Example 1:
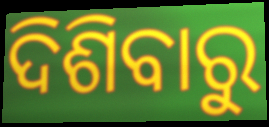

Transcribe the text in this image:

ଦିଶିବାରୁ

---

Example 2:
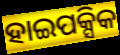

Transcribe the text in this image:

ହାଇପକ୍ସିକ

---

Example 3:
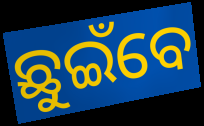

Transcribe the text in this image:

ଛୁଇଁବେ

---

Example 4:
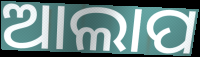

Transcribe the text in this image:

ଆଲାପ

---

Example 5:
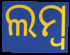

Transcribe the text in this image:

ଲମ୍ବ